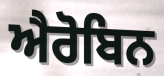
ਐਰੋਬਿਨ